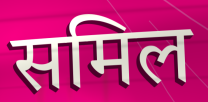
समिल